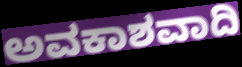
ಅವಕಾಶವಾದಿ